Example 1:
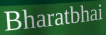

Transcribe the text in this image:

Bharatbhai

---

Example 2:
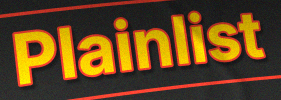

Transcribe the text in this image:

Plainlist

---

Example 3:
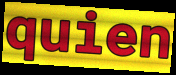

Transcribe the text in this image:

quien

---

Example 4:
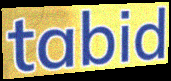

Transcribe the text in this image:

tabid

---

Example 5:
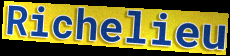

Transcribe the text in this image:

Richelieu